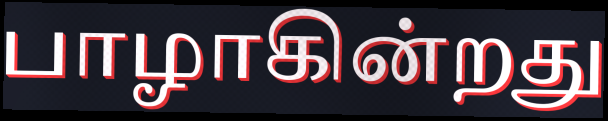
பாழாகின்றது